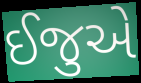
ઈજુએ